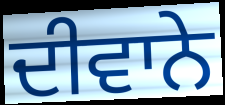
ਦੀਵਾਨੇ